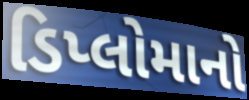
ડિપ્લોમાનો